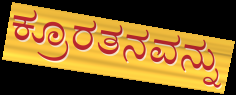
ಕ್ರೂರತನವನ್ನು